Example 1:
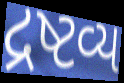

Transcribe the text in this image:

દ્રષ્ટવ્ય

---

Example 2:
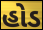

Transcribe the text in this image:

હોડ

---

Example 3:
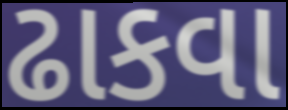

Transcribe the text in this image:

ઢાકવા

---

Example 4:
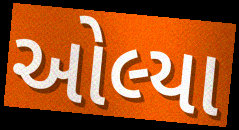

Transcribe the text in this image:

ઓલ્યા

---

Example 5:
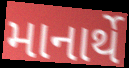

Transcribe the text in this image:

માનાર્થે